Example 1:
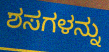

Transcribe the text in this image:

ಶಸಗಳನ್ನು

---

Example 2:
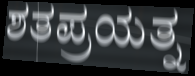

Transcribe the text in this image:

ಶತಪ್ರಯತ್ನ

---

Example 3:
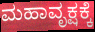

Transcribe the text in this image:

ಮಹಾವೃಕ್ಷಕ್ಕೆ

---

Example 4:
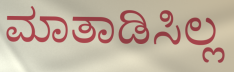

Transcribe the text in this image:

ಮಾತಾಡಿಸಿಲ್ಲ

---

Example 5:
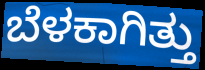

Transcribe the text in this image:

ಬೆಳಕಾಗಿತ್ತು